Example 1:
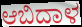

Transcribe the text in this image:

ಆಬಿದಾಳ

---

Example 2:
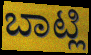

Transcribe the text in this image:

ಬಾಟ್ಲಿ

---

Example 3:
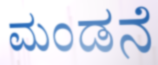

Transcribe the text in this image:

ಮಂಡನೆ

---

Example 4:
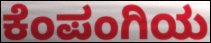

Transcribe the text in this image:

ಕೆಂಪಂಗಿಯ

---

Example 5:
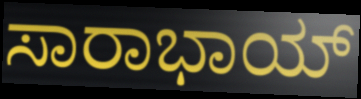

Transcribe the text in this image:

ಸಾರಾಭಾಯ್